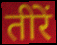
तीरें